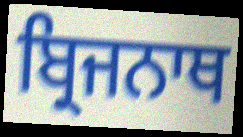
ਬ੍ਰਿਜਨਾਥ